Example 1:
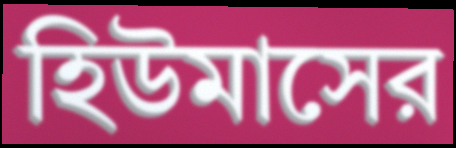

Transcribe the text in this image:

হিউমাসের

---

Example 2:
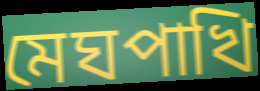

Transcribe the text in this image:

মেঘপাখি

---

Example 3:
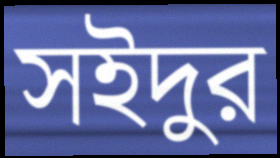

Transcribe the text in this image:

সইদুর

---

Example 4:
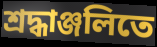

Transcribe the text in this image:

শ্রদ্ধাঞ্জলিতে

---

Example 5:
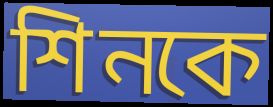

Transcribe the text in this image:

শিনকে